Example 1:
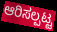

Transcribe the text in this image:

ಆರಿಸಲ್ಪಟ್ಟ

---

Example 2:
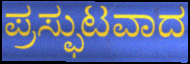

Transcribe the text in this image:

ಪ್ರಸ್ಫುಟವಾದ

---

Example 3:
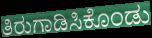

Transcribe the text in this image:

ತಿರುಗಾಡಿಸಿಕೊಂಡು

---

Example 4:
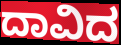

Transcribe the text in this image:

ದಾವಿದ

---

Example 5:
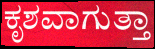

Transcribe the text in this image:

ಕೃಶವಾಗುತ್ತಾ